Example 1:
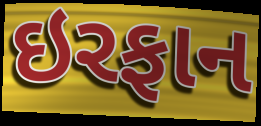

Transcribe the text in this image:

ઇરફાન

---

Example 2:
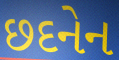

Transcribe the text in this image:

છદનેન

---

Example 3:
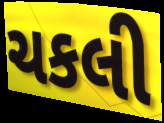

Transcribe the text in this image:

ચકલી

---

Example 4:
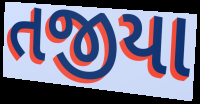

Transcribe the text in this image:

તજીયા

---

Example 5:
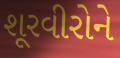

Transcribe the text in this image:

શૂરવીરોને